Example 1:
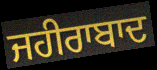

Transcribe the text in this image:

ਜਹੀਰਾਬਾਦ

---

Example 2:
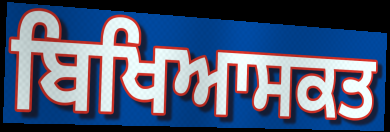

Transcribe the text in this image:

ਬਿਖਿਆਸਕਤ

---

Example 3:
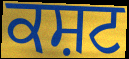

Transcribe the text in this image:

ਕਸ਼ਟ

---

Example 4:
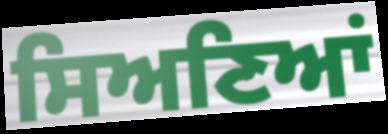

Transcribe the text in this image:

ਸਿਅਣਿਆਂ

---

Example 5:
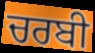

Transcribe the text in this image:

ਚਰਬੀ